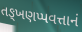
તઙ્ખણપ્પવત્તાનં